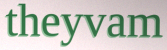
theyvam